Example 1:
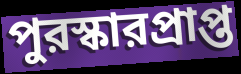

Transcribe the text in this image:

পুরস্কারপ্রাপ্ত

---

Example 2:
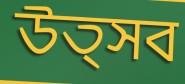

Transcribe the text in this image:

উত্সব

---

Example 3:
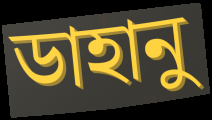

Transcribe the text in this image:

ডাহানু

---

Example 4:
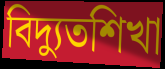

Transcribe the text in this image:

বিদ্যুতশিখা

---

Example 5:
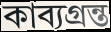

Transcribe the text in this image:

কাব্যগ্রন্ত